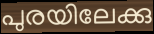
പുരയിലേക്കു